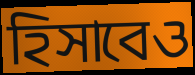
হিসাবেও